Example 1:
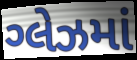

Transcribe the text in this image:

ગ્લેઝમાં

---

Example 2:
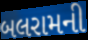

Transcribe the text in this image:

બલરામની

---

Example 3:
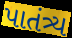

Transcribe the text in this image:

પાતંત્ર્ય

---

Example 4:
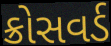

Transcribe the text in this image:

ક્રોસવર્ડ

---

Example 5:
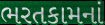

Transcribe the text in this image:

ભરતકામનાં